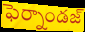
ఫెర్నాండజ్